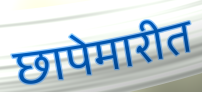
छापेमारीत